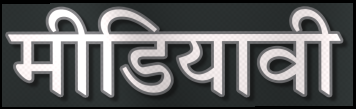
मीडियावी